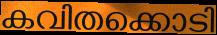
കവിതക്കൊടി